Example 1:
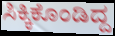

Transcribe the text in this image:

ಸಿಕ್ಕಿಕೊಂಡಿದ್ದ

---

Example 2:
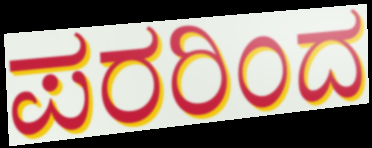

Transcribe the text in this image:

ಪರರಿಂದ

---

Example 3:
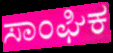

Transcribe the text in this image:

ಸಾಂಘಿಕ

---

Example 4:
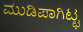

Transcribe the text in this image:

ಮುಡಿಪಾಗಿಟ್ಟ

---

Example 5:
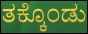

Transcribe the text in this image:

ತಕ್ಕೊಂಡು